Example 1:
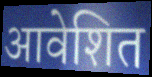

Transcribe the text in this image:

आवेशित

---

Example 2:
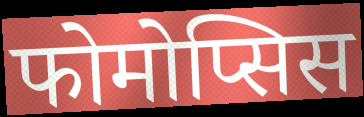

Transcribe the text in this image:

फोमोप्सिस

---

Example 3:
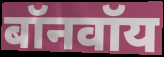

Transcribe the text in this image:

बॉनवॉय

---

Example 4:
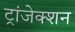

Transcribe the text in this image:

ट्रांजेक्शन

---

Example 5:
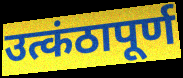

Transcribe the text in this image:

उत्कंठापूर्ण